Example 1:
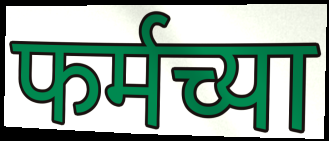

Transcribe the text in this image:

फर्मच्या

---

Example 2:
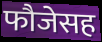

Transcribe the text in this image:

फौजेसह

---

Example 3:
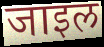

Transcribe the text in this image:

जाइल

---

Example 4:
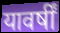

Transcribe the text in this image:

यावर्षीं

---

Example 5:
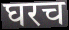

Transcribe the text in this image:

घरच